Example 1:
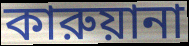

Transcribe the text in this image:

কারুয়ানা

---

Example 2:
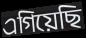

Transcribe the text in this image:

এগিয়েছি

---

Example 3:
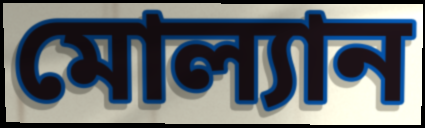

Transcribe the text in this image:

মোল্যান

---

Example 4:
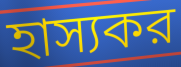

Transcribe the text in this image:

হাস্যকর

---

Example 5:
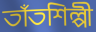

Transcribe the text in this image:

তাঁতশিল্পী